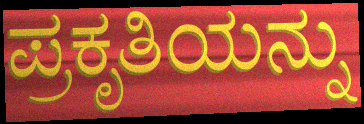
ಪ್ರಕೃತಿಯನ್ನು